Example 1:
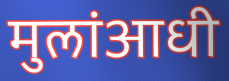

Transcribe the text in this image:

मुलांआधी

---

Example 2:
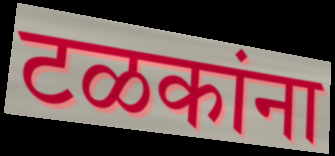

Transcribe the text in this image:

टळकांना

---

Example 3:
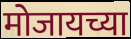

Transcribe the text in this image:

मोजायच्या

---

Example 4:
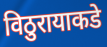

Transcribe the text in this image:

विठुरायाकडे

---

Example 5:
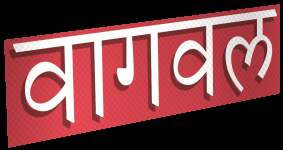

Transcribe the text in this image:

वागवल